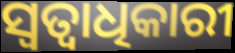
ସ୍ବତ୍ବାଧିକାରୀ